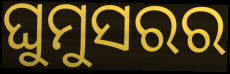
ଘୁମୁସରର